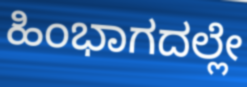
ಹಿಂಭಾಗದಲ್ಲೇ